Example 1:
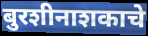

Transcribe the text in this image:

बुरशीनाशकाचे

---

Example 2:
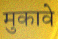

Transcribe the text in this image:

मुकावे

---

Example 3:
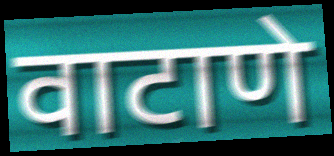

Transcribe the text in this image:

वाटाणे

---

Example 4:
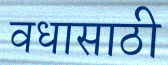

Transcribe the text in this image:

वधासाठी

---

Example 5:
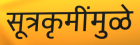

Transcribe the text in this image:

सूत्रकृमींमुळे